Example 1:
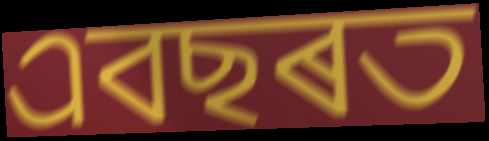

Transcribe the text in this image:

এবছৰত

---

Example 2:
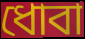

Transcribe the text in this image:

ধোবা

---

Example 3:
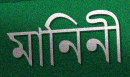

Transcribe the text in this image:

মানিনী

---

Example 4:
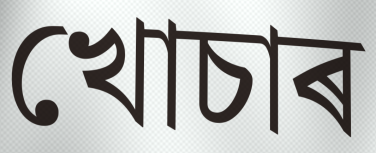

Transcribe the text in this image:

খোচাৰ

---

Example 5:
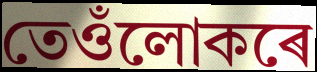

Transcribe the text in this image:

তেওঁলোকৰে